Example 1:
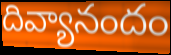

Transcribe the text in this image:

దివ్యానందం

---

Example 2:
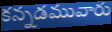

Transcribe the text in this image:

కన్నడమువారు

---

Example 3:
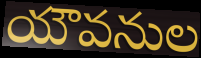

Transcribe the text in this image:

యౌవనుల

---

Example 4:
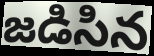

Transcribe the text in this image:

జడిసిన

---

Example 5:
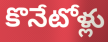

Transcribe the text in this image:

కొనేటోళ్లు